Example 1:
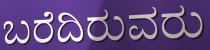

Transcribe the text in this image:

ಬರೆದಿರುವರು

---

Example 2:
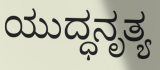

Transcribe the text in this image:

ಯುದ್ಧನೃತ್ಯ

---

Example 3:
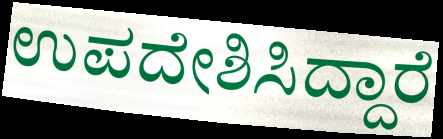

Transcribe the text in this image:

ಉಪದೇಶಿಸಿದ್ದಾರೆ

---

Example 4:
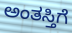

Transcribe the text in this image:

ಅಂತಸ್ತಿಗೆ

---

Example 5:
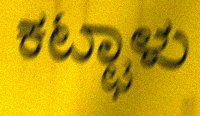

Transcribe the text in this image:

ಕಟ್ಟಾಳು